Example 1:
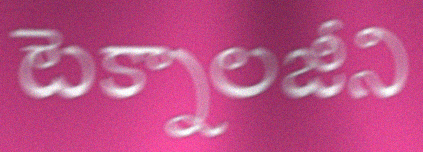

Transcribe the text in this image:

టెక్నాలజీని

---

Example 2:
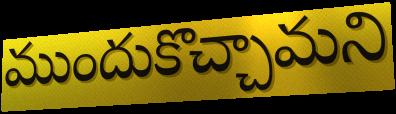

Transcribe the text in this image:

ముందుకొచ్చామని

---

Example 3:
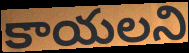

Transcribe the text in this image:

కాయలని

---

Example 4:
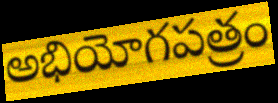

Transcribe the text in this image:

అభియోగపత్రం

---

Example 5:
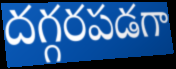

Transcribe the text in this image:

దగ్గరపడగా